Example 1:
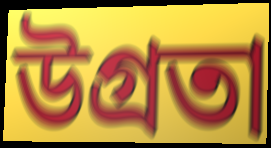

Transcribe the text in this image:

উগ্ৰতা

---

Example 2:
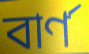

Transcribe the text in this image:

বাৰ্ণ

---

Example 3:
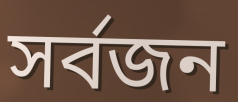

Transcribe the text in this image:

সৰ্বজন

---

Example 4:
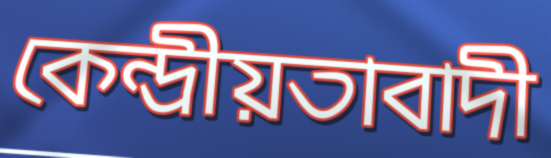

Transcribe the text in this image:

কেন্দ্ৰীয়তাবাদী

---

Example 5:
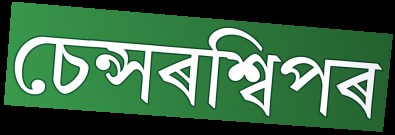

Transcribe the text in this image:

চেন্সৰশ্বিপৰ